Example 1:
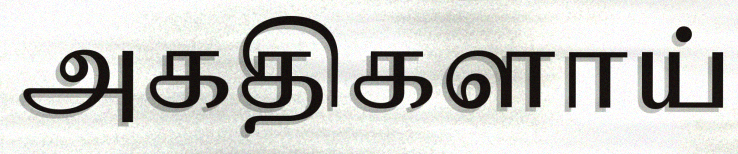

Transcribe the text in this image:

அகதிகளாய்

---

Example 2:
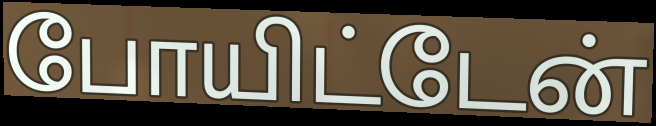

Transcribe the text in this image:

போயிட்டேன்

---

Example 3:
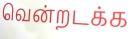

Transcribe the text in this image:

வென்றடக்க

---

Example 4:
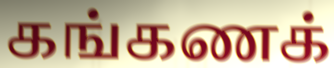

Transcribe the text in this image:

கங்கணக்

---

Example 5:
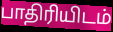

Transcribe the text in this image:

பாதிரியிடம்